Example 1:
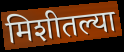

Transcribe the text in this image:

मिशीतल्या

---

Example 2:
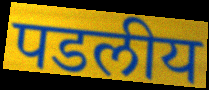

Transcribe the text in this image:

पडलीय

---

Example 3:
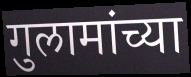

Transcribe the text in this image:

गुलामांच्या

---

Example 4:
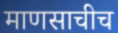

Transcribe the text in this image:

माणसाचीच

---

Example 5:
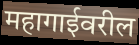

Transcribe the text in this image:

महागाईवरील